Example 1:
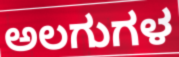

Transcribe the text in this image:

ಅಲಗುಗಳ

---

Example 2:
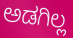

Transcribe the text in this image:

ಅಡಗಿಲ್ಲ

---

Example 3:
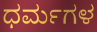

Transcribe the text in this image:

ಧರ್ಮಗಳ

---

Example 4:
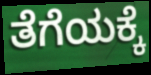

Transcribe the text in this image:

ತೆಗೆಯಕ್ಕೆ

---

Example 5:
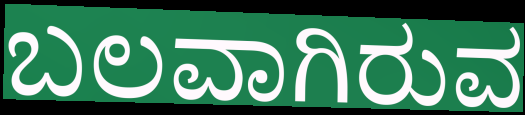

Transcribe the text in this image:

ಬಲವಾಗಿರುವ